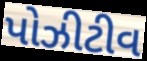
પોઝીટીવ